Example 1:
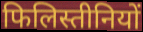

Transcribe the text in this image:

फिलिस्तीनियों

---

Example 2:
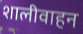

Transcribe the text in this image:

शालीवाहन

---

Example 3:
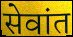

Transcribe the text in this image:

सेवांत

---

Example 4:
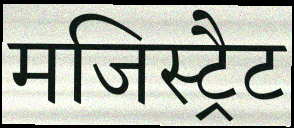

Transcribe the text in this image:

मजिस्ट्रैट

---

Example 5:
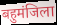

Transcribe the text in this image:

बहुमंजिला